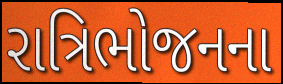
રાત્રિભોજનના